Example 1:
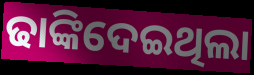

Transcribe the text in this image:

ଢାଙ୍କିଦେଇଥିଲା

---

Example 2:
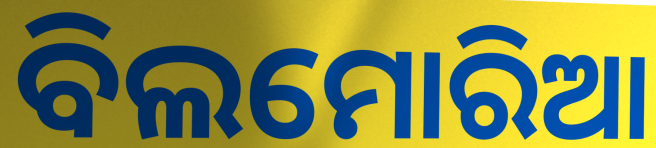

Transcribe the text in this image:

ବିଲମୋରିଆ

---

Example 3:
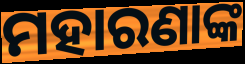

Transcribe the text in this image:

ମହାରଣାଙ୍କ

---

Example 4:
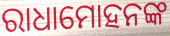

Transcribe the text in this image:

ରାଧାମୋହନଙ୍କ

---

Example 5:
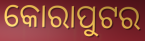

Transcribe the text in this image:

କୋରାପୁଟର